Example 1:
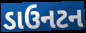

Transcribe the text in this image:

ડાઉનટન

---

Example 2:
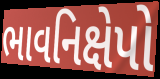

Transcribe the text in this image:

ભાવનિક્ષેપો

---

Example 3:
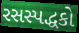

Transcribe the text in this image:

રસસ્પદ્ધકો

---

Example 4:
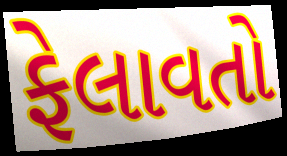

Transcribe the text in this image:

ફેલાવતો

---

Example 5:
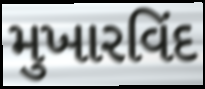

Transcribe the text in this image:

મુખારવિંદ